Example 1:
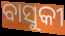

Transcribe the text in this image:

ବାସୁକୀ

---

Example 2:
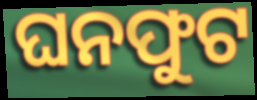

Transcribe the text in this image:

ଘନଫୁଟ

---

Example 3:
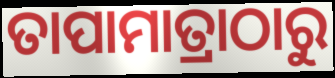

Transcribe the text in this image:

ତାପାମାତ୍ରାଠାରୁ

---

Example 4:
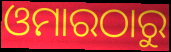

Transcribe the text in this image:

ଓମାରଠାରୁ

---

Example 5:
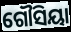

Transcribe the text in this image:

ଗୌସିୟା